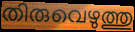
തിരുവെഴുത്തു